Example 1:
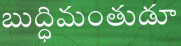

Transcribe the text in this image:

బుద్ధిమంతుడూ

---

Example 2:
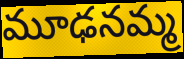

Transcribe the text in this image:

మూఢనమ్మ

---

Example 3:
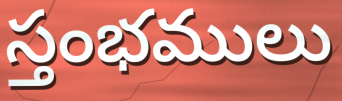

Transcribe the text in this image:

స్తంభములు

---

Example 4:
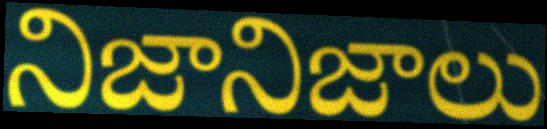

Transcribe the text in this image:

నిజానిజాలు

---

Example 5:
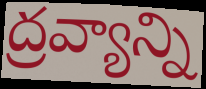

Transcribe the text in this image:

ద్రవ్యాన్ని